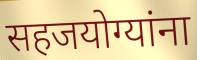
सहजयोग्यांना